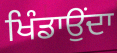
ਖਿੰਡਾਉਂਦਾ